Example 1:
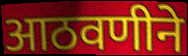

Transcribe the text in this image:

आठवणीने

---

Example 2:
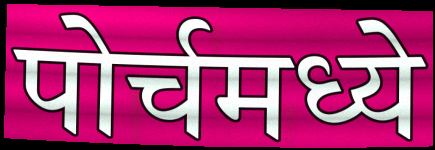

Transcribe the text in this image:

पोर्चमध्ये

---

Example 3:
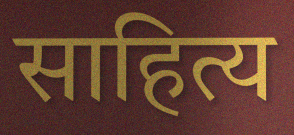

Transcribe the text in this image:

साहित्य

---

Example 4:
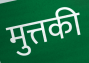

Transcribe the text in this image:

मुत्तकी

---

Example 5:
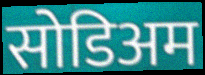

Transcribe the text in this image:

सोडिअम